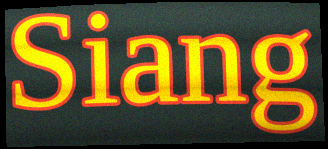
Siang